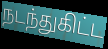
நடந்துகிட்ட